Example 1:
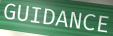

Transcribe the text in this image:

GUIDANCE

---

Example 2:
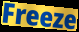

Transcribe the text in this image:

Freeze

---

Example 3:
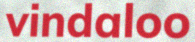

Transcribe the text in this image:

vindaloo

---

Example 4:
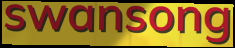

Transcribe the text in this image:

swansong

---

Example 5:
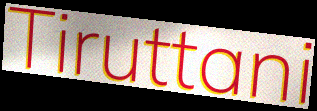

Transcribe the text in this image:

Tiruttani